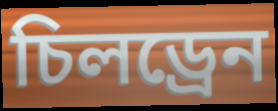
চিলড্ৰেন